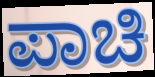
ಪಾಚಿ